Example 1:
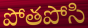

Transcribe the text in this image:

పోతపోసి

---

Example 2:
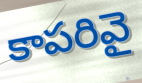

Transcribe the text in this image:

కాపరివై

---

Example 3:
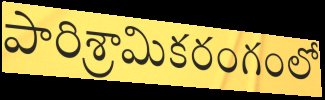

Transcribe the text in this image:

పారిశ్రామికరంగంలో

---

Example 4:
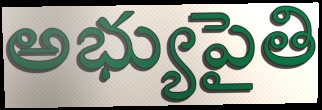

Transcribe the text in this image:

అభ్యుపైతి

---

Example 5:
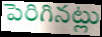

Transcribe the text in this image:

పెరిగినట్లు